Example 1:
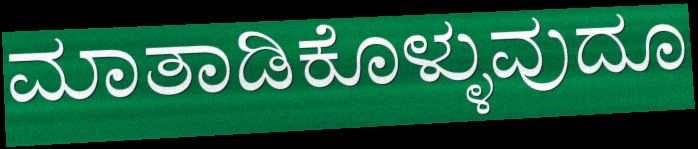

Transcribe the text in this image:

ಮಾತಾಡಿಕೊಳ್ಳುವುದೂ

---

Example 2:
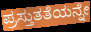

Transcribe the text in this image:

ಪ್ರಸ್ತುತತೆಯನ್ನೇ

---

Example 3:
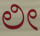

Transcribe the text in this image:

ಲೀ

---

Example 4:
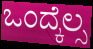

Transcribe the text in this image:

ಒಂದ್ಕೆಲ್ಸ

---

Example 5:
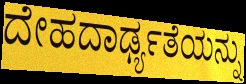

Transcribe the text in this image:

ದೇಹದಾರ್ಢ್ಯತೆಯನ್ನು